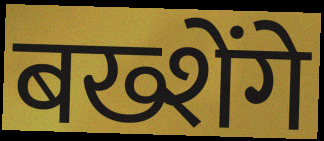
बख्शेंगे